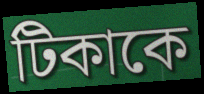
টিকাকে